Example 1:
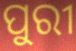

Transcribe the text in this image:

ପୁରୀ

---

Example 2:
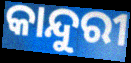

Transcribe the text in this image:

କାନ୍ଦୁରୀ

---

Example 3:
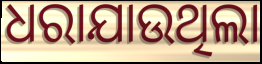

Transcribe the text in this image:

ଧରାଯାଉଥିଲା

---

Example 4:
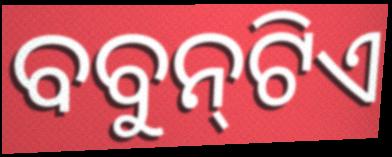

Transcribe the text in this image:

ବବୁନ୍‍ଟିଏ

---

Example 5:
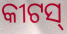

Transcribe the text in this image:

କୀଟସ୍